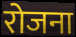
रोजना